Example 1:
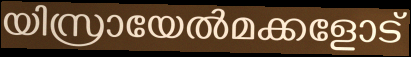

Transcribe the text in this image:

യിസ്രായേൽമക്കളോട്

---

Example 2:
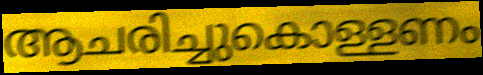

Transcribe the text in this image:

ആചരിച്ചുകൊള്ളണം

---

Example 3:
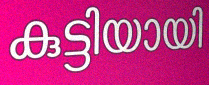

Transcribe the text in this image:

കുട്ടിയായി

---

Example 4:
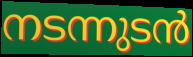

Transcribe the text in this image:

നടന്നുടൻ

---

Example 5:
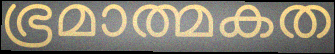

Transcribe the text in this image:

ഭ്രമാത്മകത